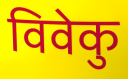
विवेकु